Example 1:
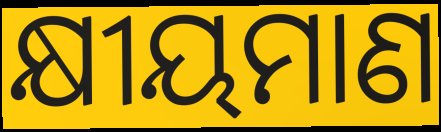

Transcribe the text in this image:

କ୍ଷୀୟମାଣ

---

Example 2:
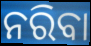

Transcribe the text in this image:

ନରିବା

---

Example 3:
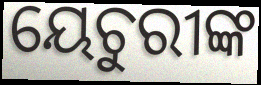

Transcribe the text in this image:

ୟେଚୁରୀଙ୍କ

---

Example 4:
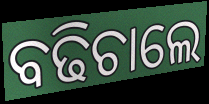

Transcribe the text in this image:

ବଢିଚାଲେ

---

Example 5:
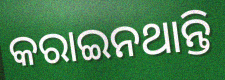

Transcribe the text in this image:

କରାଇନଥାନ୍ତି